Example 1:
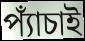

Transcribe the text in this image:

প্যাঁচাই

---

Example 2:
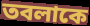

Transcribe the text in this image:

তবলাকে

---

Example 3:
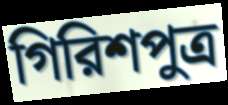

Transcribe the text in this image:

গিরিশপুত্র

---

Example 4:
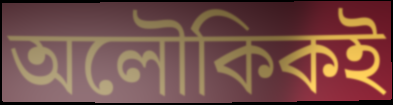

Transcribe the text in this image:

অলৌকিকই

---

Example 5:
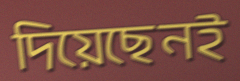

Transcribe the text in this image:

দিয়েছেনই